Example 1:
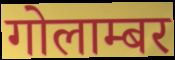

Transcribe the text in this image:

गोलाम्बर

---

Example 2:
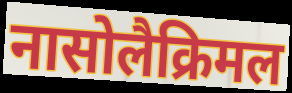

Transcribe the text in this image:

नासोलैक्रिमल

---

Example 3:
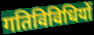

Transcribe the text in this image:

गतिविविधियों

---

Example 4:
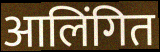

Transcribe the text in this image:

आलिंगित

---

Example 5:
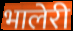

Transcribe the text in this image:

भालेरी